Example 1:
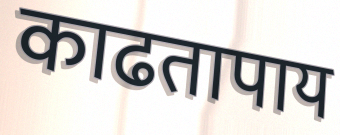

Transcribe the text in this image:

काढतापाय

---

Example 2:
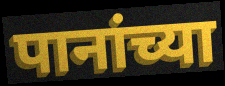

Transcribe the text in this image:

पानांच्या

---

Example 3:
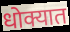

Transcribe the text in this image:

धोक्यात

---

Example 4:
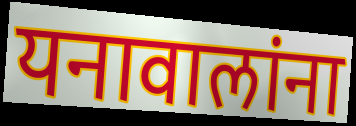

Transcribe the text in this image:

यनावालांना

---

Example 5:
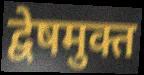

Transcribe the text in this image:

द्वेषमुक्त